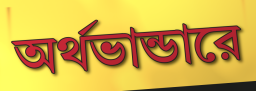
অর্থভান্ডারে